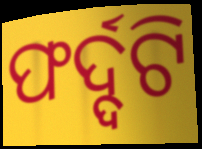
ଫର୍ଦ୍ଦଟି